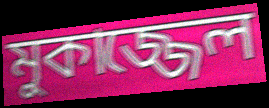
মুকাজ্জেল